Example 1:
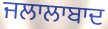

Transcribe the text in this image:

ਜਲਾਲਾਬਾਦ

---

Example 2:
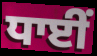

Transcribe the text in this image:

ਧਾਈਂ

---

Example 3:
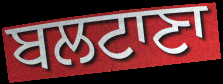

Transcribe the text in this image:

ਬਲਟਾਣਾ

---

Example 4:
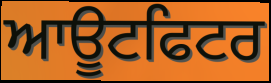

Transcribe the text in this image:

ਆਊਟਫਿਟਰ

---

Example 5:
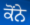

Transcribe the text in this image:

ਕੋਂਨੇ